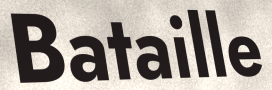
Bataille